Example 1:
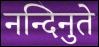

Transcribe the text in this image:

नन्दिनुते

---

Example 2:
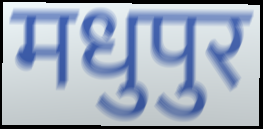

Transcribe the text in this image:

मधुपुर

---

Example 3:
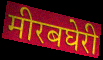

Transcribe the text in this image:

मीरबघेरी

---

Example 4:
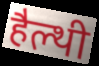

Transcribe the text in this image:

हैल्थी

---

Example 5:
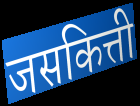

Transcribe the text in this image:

जसकित्ती